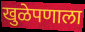
खुळेपणाला